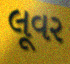
લૂવર